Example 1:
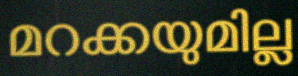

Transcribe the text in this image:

മറക്കയുമില്ല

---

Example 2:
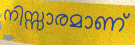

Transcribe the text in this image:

നിസ്സാരമാണ്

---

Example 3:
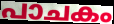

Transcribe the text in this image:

പാചകം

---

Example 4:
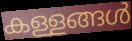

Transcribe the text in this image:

കള്ളങ്ങൾ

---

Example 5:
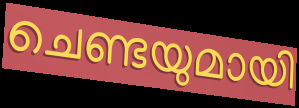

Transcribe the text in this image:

ചെണ്ടയുമായി